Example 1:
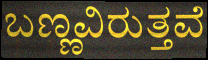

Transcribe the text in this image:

ಬಣ್ಣವಿರುತ್ತವೆ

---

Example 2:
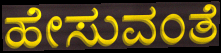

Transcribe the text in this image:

ಹೇಸುವಂತೆ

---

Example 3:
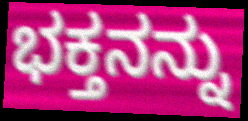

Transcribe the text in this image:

ಭಕ್ತನನ್ನು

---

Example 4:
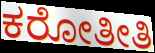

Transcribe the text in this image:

ಕರೋತೀತಿ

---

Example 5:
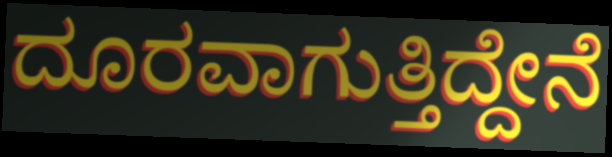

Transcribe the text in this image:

ದೂರವಾಗುತ್ತಿದ್ದೇನೆ